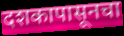
दशकापासूनचा